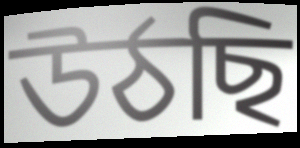
উঠছি